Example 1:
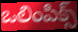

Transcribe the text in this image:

ఒలింపిక్స్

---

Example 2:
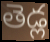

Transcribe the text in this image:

తెడ్ల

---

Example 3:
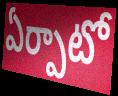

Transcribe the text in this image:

ఏర్పాటో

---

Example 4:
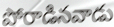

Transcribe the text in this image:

పోరాడినవాడు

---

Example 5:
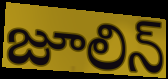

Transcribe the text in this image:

జూలిన్